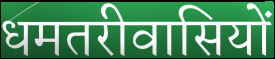
धमतरीवासियों